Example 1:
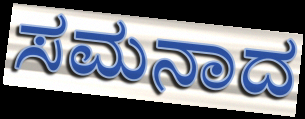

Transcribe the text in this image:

ಸಮನಾದ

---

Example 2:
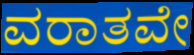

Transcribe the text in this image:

ವರಾತವೇ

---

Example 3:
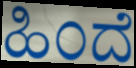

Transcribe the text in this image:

ಹಿಂದೆ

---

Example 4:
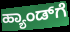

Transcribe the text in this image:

ಹ್ಯಾಂಡ್‌ಗೆ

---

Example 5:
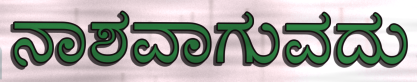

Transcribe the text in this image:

ನಾಶವಾಗುವದು